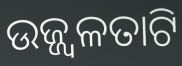
ଉଜ୍ଜ୍ୱଳତାଟି